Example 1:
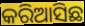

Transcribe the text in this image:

କରିଆସିଛ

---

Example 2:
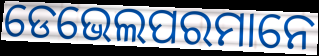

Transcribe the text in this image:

ଡେଭେଲପରମାନେ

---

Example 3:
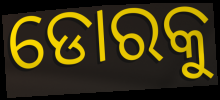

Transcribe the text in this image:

ଡୋରକୁ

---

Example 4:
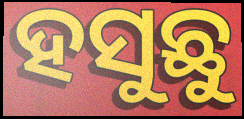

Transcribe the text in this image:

ହସୁଛୁ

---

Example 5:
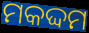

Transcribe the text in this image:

ମକଦ୍ଦମ